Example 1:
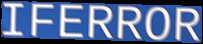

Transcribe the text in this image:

IFERROR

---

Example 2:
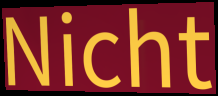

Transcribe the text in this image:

Nicht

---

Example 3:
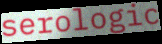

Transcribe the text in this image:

serologic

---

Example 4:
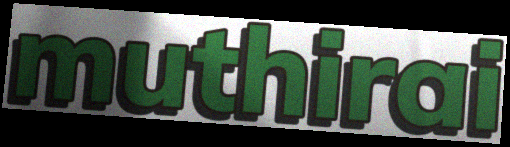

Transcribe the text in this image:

muthirai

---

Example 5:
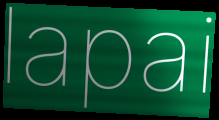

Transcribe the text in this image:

lapai